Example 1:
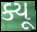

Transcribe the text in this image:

ક્યૂ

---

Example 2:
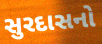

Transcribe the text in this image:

સુરદાસનો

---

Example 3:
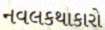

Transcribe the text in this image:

નવલકથાકારો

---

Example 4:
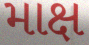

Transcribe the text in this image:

માક્ષ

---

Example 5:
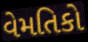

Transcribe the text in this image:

વેમતિકો